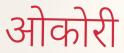
ओकोरी